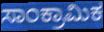
ಸಾಂಕ್ರಾಮಿಕ